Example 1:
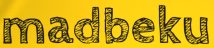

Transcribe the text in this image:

madbeku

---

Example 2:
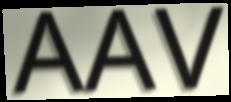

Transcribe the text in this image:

AAV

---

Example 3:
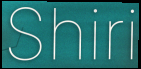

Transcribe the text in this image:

Shiri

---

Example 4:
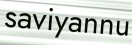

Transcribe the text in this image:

saviyannu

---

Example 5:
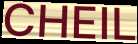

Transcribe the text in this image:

CHEIL